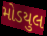
મોડયુલ